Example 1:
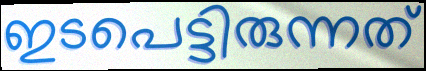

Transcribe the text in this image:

ഇടപെട്ടിരുന്നത്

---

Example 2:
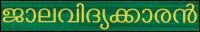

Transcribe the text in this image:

ജാലവിദ്യക്കാരൻ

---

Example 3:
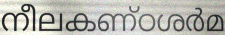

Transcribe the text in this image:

നീലകണ്ഠശർമ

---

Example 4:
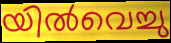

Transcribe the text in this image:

യിൽവെച്ചു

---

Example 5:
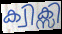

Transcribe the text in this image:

ക്വിക്സി